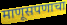
माणूसपणाचा